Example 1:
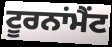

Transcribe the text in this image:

ਟੂਰਨਾਂਮੈਂਟ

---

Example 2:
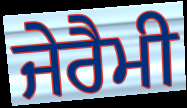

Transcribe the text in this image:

ਜੇਰੈਮੀ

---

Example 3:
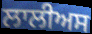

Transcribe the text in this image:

ਲਾਲੀਅਸ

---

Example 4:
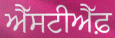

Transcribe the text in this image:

ਐੱਸਟੀਐੱਫ਼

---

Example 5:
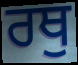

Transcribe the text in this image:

ਰਥੁ